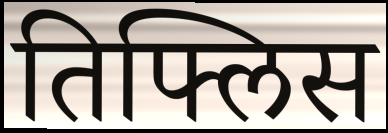
तिफ्लिस